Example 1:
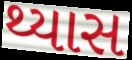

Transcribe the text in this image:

થ્યાસ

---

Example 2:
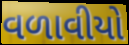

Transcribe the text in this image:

વળાવીયો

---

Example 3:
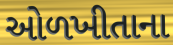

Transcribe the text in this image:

ઓળખીતાના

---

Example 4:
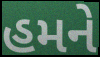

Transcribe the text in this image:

હમને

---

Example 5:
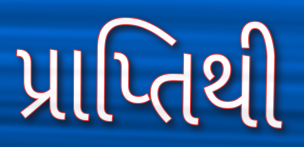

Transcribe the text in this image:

પ્રાપ્તિથી